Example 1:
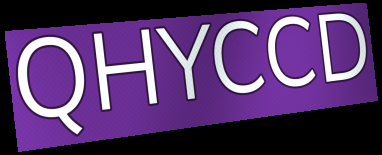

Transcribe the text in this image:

QHYCCD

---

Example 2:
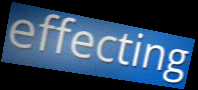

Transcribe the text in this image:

effecting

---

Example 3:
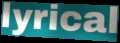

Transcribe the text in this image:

lyrical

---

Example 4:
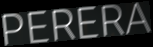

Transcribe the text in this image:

PERERA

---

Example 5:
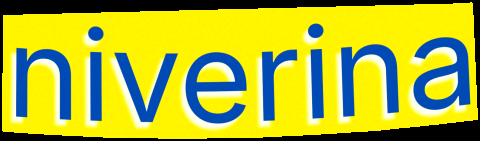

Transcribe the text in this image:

niverina